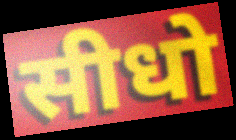
सीधो